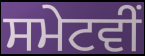
ਸਮੇਟਵੀਂ